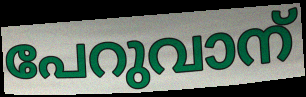
പേറുവാന്